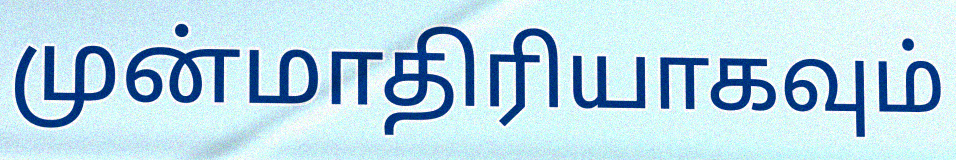
முன்மாதிரியாகவும்